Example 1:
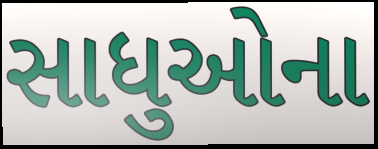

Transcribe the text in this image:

સાધુઓના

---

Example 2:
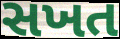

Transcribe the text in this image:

સખત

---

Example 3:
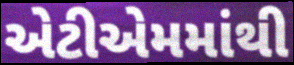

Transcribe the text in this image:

એટીએમમાંથી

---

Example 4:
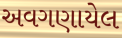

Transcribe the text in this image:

અવગણાયેલ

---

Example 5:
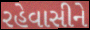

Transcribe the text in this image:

રહેવાસીને